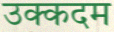
उक्कदम